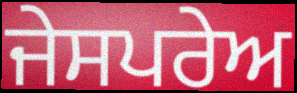
ਜੇਸਪਰੇਅ